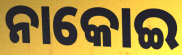
ନାକୋଇ